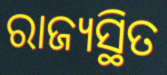
ରାଜ୍ୟସ୍ଥିତ